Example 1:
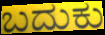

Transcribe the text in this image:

ಬದುಕು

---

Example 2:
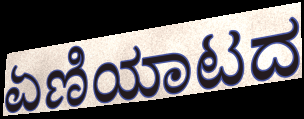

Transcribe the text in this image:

ಏಣಿಯಾಟದ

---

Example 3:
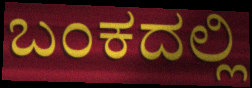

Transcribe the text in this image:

ಬಂಕದಲ್ಲಿ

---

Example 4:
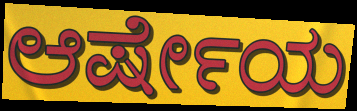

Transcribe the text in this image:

ಆರ್ಷೇಯ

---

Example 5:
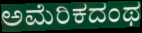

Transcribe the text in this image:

ಅಮೆರಿಕದಂಥ